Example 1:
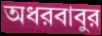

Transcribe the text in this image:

অধরবাবুর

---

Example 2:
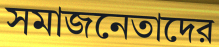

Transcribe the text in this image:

সমাজনেতাদের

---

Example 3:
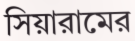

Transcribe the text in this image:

সিয়ারামের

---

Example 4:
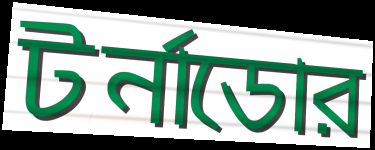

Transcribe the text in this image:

টর্নাডোর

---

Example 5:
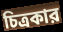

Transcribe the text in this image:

চিত্রকার